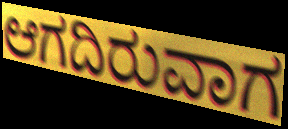
ಆಗದಿರುವಾಗ